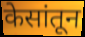
केसांतून